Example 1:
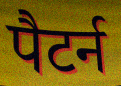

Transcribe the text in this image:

पैटर्न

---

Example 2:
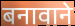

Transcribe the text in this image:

बनावाने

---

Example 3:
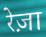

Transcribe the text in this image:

रेज़ा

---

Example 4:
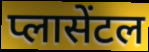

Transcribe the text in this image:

प्लासेंटल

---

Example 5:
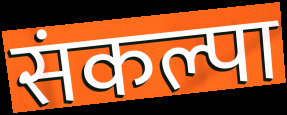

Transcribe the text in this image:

संकल्पा